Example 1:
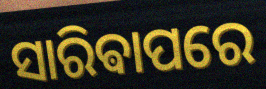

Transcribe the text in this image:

ସାରିଵାପରେ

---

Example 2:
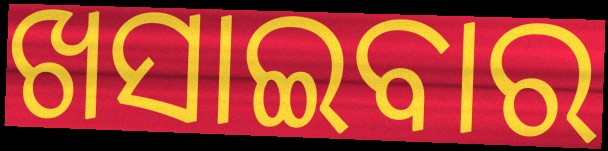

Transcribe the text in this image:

ଖସାଇବାର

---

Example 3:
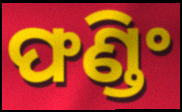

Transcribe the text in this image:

ଫଣ୍ଡିଂ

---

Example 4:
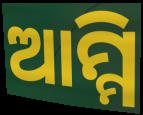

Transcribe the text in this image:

ଆମ୍ମି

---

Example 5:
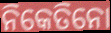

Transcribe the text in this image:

ନିକେତିନୋ